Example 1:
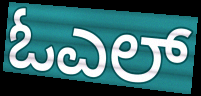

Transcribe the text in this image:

ಓಎಲ್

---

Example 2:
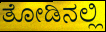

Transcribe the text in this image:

ತೋಡಿನಲ್ಲಿ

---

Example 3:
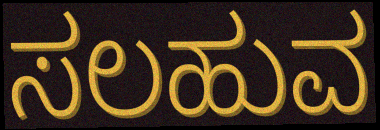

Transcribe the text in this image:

ಸಲಹುವ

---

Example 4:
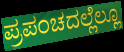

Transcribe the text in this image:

ಪ್ರಪಂಚದಲ್ಲೆಲ್ಲೂ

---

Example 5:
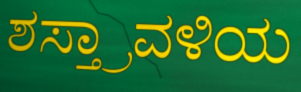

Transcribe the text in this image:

ಶಸ್ತ್ರಾವಳಿಯ